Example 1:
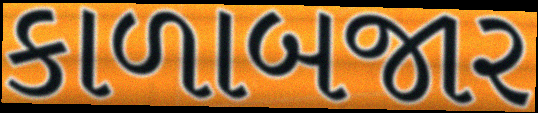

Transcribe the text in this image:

કાળાબજાર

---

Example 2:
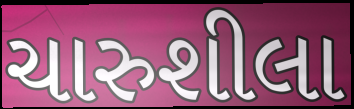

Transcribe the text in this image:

ચારુશીલા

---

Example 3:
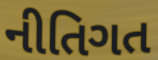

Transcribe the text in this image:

નીતિગત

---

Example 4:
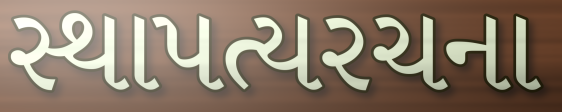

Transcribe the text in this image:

સ્થાપત્યરચના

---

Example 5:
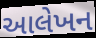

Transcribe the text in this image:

આલેખન